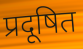
प्रदूषित